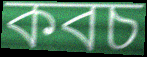
কবচ